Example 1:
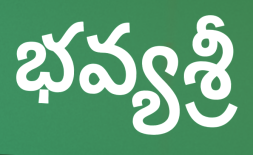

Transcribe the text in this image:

భవ్యశ్రీ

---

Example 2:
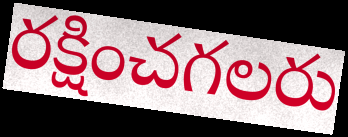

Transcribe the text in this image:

రక్షించగలరు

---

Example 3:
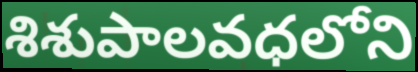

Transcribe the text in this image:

శిశుపాలవధలోని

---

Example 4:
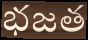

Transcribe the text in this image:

భజత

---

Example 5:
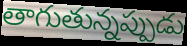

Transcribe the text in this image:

తాగుతున్నప్పుడు